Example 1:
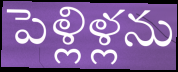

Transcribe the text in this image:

పెళ్లిళ్లను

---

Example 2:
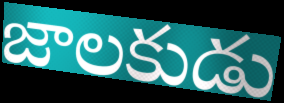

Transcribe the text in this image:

జాలకుడు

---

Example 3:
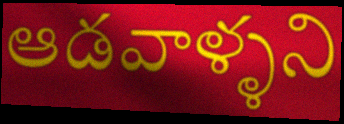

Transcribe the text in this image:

ఆడవాళ్ళని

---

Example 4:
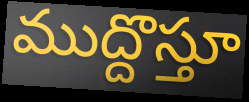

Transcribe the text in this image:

ముద్దొస్తూ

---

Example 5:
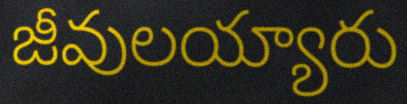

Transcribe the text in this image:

జీవులయ్యారు